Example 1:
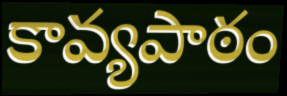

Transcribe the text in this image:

కావ్యపాఠం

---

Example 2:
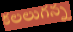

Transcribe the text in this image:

కలలుగన్న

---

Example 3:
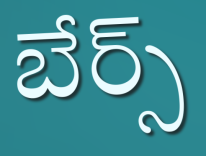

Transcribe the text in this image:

బేర్స్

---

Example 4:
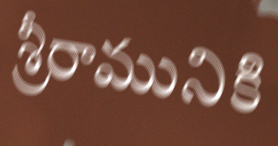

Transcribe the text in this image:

శ్రీరామునికి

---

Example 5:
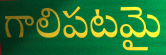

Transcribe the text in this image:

గాలిపటమై